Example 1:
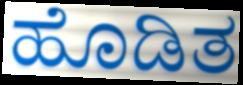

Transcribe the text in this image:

ಹೊಡಿತ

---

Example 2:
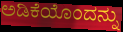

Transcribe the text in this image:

ಅಡಿಕೆಯೊಂದನ್ನು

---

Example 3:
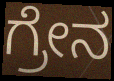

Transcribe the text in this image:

ಗ್ರೇನ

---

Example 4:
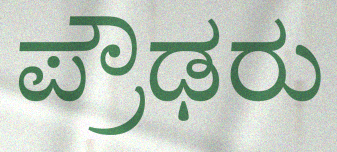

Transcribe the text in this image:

ಪ್ರೌಢರು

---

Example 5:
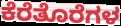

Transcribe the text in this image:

ಕೆರೆತೊರೆಗಳ